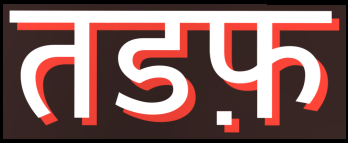
तडफ़